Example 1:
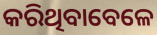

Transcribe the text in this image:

କରିଥିବାବେଳେ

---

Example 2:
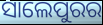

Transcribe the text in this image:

ସାଲେପୁରର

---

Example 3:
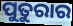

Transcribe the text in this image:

ପୁତୁରାର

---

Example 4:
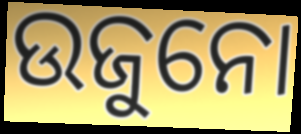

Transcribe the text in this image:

ଉଜୁନୋ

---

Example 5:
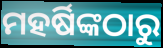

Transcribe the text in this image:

ମହର୍ଷିଙ୍କଠାରୁ